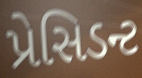
પ્રેસિડન્ટ